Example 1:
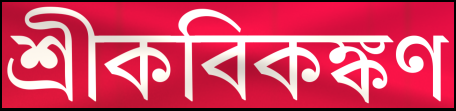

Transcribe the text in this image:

শ্রীকবিকঙ্কণ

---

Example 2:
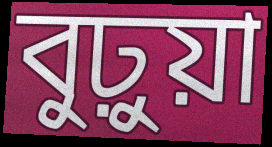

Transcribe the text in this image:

বুঢ়ুয়া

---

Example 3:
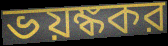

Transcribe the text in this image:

ভয়ঙ্ককর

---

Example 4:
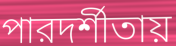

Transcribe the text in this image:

পারদর্শীতায়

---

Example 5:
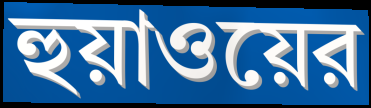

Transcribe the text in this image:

হুয়াওয়ের